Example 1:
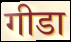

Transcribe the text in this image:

गीडा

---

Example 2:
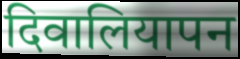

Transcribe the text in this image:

दिवालियापन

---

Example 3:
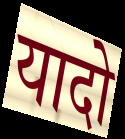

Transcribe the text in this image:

यादो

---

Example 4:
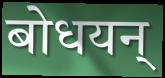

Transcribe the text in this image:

बोधयन्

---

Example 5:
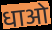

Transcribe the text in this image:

धाओ